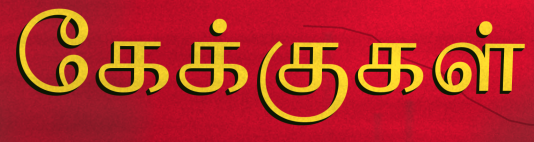
கேக்குகள்